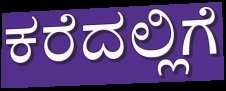
ಕರೆದಲ್ಲಿಗೆ